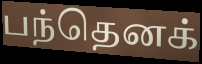
பந்தெனக்